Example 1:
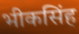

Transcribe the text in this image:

भीकसिंह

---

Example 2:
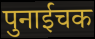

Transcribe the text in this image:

पुनाईचक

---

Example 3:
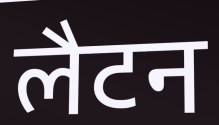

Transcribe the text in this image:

लैटन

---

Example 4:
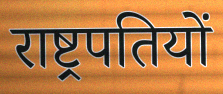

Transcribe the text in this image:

राष्ट्रपतियों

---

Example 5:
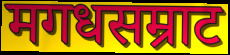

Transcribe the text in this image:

मगधसम्राट